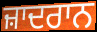
ਜ਼ਾਦਰਾਨ